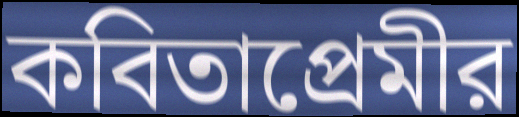
কবিতাপ্রেমীর